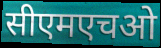
सीएमएचओ